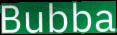
Bubba